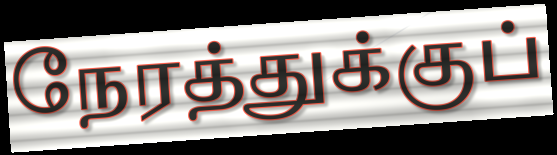
நேரத்துக்குப்